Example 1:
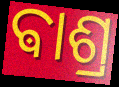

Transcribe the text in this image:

ଵାଶ୍ର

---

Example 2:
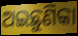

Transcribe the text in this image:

ଅଇଛୁଣିକା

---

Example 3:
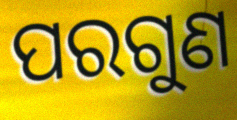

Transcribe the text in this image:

ପରଗୁଣ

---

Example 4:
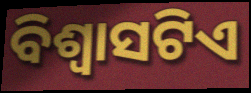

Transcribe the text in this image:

ବିଶ୍ଵାସଟିଏ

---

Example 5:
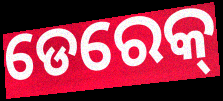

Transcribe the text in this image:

ଡେରେକ୍